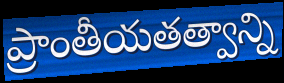
ప్రాంతీయతత్వాన్ని